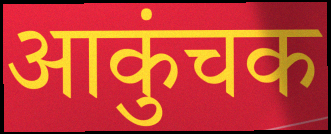
आकुंचक